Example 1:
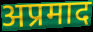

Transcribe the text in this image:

अप्रमाद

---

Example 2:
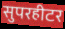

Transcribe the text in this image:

सुपरहीटर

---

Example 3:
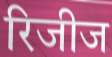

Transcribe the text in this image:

रिजीज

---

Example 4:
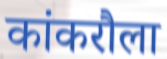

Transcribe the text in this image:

कांकरौला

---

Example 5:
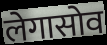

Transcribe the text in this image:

लेगासोव